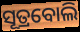
ସୂତ୍ରବୋଲି